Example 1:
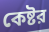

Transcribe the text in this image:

কেষ্টর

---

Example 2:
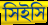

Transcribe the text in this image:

সিইসি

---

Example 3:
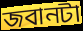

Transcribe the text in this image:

জবানটা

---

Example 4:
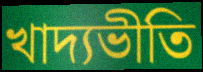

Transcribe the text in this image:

খাদ্যভীতি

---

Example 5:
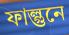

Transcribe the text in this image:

ফাল্গুনে